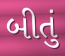
બીતું